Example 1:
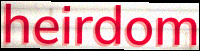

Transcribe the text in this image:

heirdom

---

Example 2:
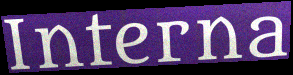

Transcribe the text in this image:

Interna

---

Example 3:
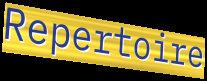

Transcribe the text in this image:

Repertoire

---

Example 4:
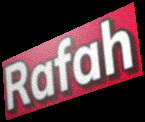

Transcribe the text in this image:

Rafah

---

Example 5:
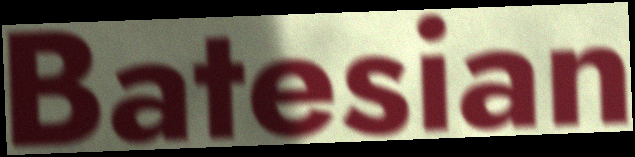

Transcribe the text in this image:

Batesian